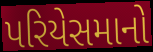
પરિયેસમાનો